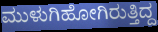
ಮುಳುಗಿಹೋಗಿರುತ್ತಿದ್ದ